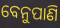
ବେନୁପାଣି